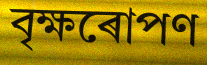
বৃক্ষৰোপণ